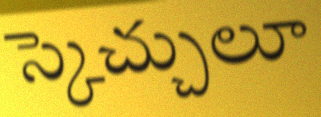
స్కెచ్చులూ